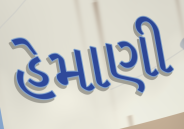
હેમાણી